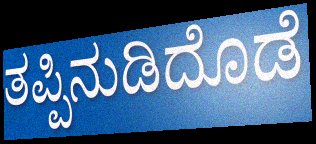
ತಪ್ಪಿನುಡಿದೊಡೆ